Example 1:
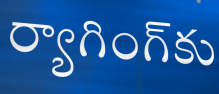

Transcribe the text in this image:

ర్యాగింగ్‌కు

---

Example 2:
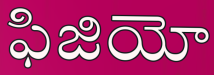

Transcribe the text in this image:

ఫిజియో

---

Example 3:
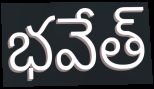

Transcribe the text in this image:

భవేత్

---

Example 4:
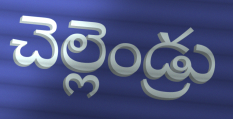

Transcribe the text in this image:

చెల్లెండ్రు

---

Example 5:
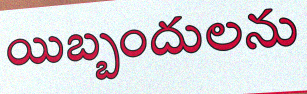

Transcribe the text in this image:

యిబ్బందులను